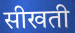
सीखती